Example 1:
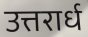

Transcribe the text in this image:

उत्तरार्ध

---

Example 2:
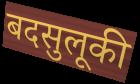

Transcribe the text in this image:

बदसुलूकी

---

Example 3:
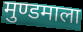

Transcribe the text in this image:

मुण्डमाला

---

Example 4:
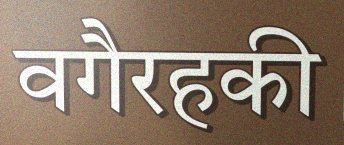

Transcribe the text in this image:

वगैरहकी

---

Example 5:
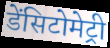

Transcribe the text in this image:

डेंसिटोमेट्री